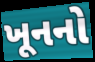
ખૂનનો